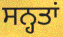
ਸਨ੍ਹਤਾਂ